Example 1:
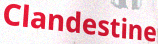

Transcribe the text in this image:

Clandestine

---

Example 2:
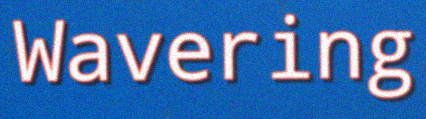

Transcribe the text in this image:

Wavering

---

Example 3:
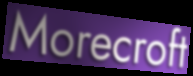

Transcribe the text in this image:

Morecroft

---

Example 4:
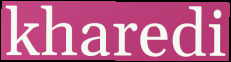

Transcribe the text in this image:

kharedi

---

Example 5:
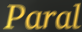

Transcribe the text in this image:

Paral